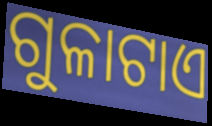
ଗୁଳାଟାଏ